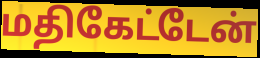
மதிகேட்டேன்